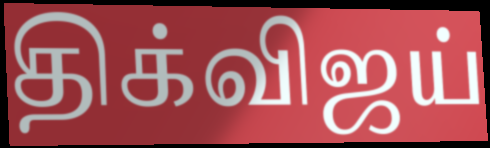
திக்விஜய்